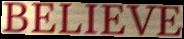
BELIEVE